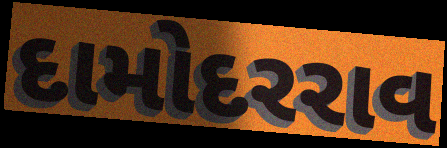
દામોદરરાવ